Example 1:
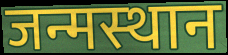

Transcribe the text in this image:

जन्मस्थान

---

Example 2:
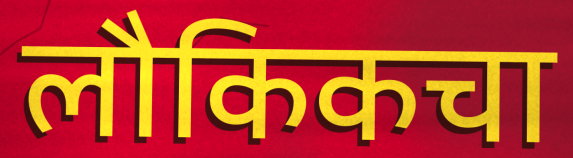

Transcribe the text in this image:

लौकिकचा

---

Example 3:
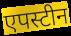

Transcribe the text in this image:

एपस्टीन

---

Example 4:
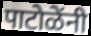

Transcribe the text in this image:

पाटोळेंनी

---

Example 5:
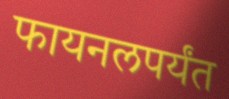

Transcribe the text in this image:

फायनलपर्यंत